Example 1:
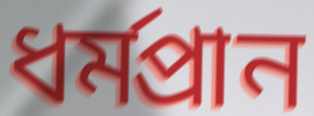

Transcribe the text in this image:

ধর্মপ্রান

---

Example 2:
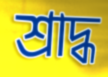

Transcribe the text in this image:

শ্রাদ্ধ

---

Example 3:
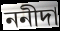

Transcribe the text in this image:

ননীদা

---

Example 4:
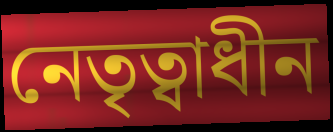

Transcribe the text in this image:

নেতৃত্বাধীন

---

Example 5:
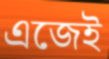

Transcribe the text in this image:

এজেই